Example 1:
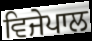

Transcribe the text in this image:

ਵਿਜੇਪਾਲ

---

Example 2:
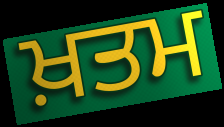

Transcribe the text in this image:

ਖ਼ਤਮ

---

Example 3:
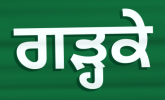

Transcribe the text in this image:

ਗੜ੍ਹਕੇ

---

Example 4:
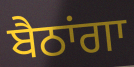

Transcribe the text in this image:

ਬੈਠਾਂਗਾ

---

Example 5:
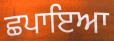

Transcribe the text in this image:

ਛਪਾਇਆ